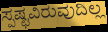
ಸ್ಪಷ್ಟವಿರುವುದಿಲ್ಲ